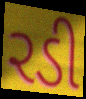
રડી